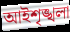
আইশৃঙ্খলা